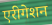
एरीगेशन